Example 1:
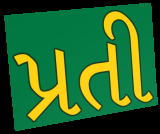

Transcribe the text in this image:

પ્રતી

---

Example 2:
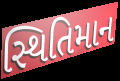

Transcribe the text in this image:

સ્થિતિમાન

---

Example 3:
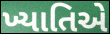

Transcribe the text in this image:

ખ્યાતિએ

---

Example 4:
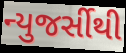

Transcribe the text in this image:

ન્યુજર્સીથી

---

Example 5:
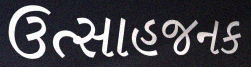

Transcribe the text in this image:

ઉત્સાહજનક